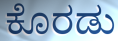
ಕೊರಡು